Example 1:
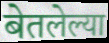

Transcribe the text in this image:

बेतलेल्या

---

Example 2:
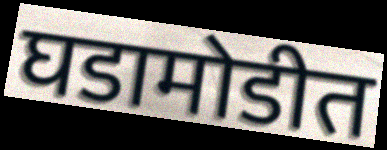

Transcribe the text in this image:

घडामोडीत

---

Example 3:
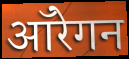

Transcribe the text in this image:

ऑरेगन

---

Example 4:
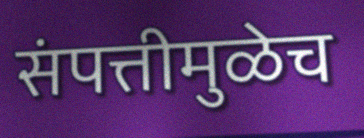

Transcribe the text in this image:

संपत्तीमुळेच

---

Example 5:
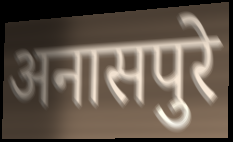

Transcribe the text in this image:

अनासपुरे